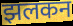
झलकन